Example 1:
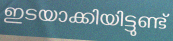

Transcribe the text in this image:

ഇടയാക്കിയിട്ടുണ്ട്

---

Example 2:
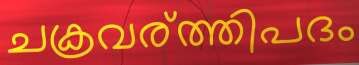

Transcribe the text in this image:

ചക്രവര്ത്തിപദം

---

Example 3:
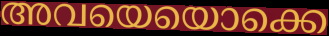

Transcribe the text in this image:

അവയെയൊക്കെ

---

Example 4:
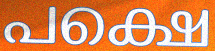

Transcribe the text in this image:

പക്ഷെ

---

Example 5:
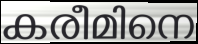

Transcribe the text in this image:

കരീമിനെ